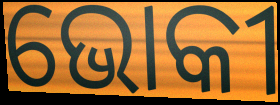
ଭୋକୀ